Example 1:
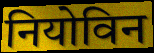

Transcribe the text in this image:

नियोविन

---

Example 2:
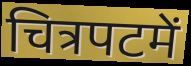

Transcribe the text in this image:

चित्रपटमें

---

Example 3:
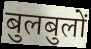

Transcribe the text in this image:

बुलबुलों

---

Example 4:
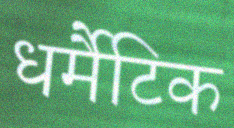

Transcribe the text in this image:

धर्मैटिक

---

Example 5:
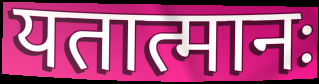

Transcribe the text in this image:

यतात्मानः